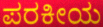
ಪರಕೀಯ